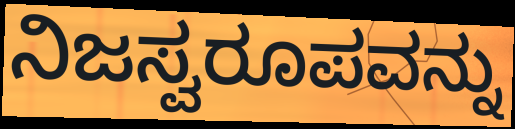
ನಿಜಸ್ವರೂಪವನ್ನು